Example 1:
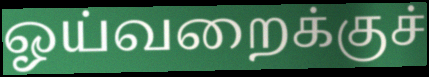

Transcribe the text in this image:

ஓய்வறைக்குச்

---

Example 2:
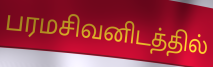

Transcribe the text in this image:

பரமசிவனிடத்தில்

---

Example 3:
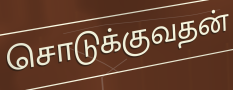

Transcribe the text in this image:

சொடுக்குவதன்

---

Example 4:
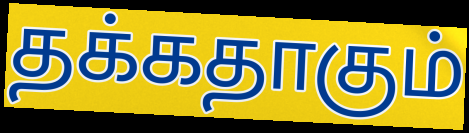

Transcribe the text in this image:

தக்கதாகும்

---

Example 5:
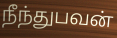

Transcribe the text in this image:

நீந்துபவன்